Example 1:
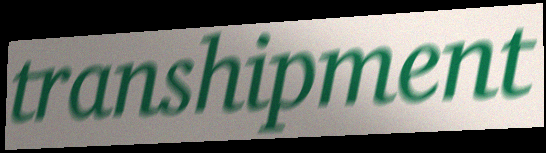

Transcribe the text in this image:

transhipment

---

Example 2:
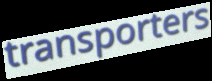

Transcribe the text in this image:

transporters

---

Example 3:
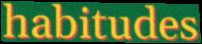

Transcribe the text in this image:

habitudes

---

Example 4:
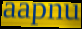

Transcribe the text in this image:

aapnu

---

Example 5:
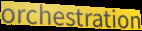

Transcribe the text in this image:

orchestration